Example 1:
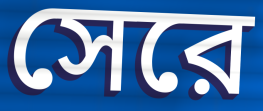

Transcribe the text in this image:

সেরে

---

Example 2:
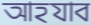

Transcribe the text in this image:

আহযাব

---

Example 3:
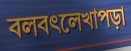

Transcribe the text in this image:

বলবৎলেখাপড়া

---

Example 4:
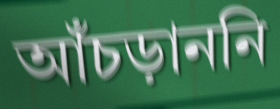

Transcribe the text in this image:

আঁচড়াননি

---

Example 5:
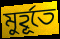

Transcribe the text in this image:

মুর্হূতে